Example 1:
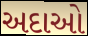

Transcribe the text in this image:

અદાઓ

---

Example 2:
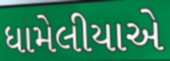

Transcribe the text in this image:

ધામેલીયાએ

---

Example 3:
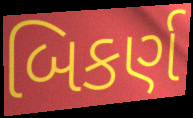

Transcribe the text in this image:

બિકર્ણ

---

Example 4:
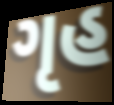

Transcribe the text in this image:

ગૃહ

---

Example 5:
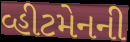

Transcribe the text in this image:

વ્હીટમેનની